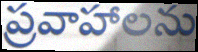
ప్రవాహాలను